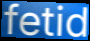
fetid